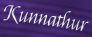
Kunnathur